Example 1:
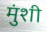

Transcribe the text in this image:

मुंशी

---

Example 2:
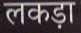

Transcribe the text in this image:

लकड़ा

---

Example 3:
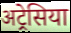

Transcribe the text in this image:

अट्रेसिया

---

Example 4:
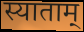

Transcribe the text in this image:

स्याताम्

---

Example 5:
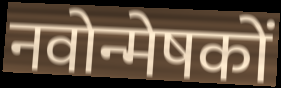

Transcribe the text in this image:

नवोन्‍मेषकों